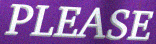
PLEASE